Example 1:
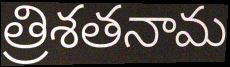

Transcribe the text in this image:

త్రిశతనామ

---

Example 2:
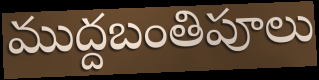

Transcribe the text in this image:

ముద్దబంతిపూలు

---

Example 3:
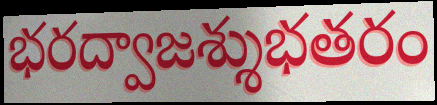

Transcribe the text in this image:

భరద్వాజశ్శుభతరం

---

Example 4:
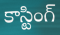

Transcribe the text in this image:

కాస్టింగ్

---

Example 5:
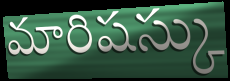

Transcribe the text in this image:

మారిషస్కు